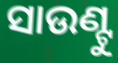
ସାଉଣ୍ଟୁ